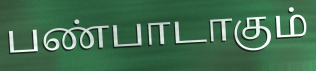
பண்பாடாகும்